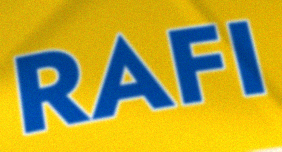
RAFI